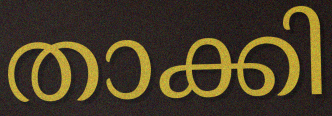
താക്കി